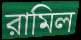
রামিল